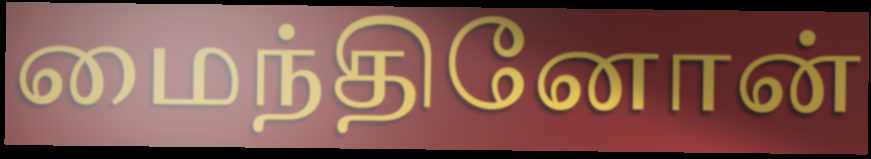
மைந்தினோன்